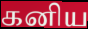
கனிய